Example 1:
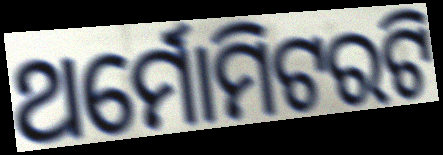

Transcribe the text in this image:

ଥର୍ମୋମିଟରଟି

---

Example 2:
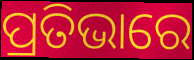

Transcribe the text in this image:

ପ୍ରତିଭାରେ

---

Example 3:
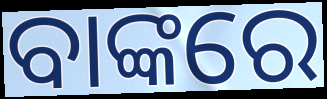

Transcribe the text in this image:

ବାଙ୍କରେ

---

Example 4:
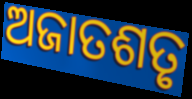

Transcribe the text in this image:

ଅଜାତଶତୃ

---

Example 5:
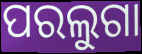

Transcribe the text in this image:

ପରଲୁଗା